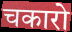
चकारो